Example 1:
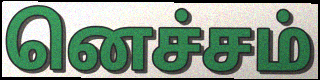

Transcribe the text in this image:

னெச்சம்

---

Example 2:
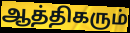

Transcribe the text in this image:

ஆத்திகரும்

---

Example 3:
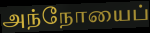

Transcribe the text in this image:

அந்நோயைப்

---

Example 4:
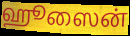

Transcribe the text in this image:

ஹூஸைன்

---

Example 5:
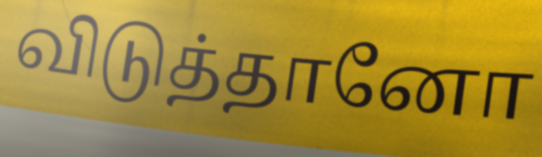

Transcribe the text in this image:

விடுத்தானோ